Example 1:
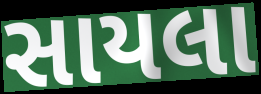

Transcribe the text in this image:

સાયલા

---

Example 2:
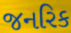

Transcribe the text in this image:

જનરિક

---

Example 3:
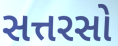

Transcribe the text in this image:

સત્તરસો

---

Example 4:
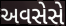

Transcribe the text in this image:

અવસેસે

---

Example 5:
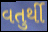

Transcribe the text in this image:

વતુર્થી